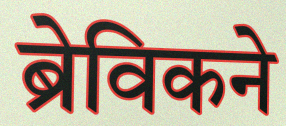
ब्रेविकने